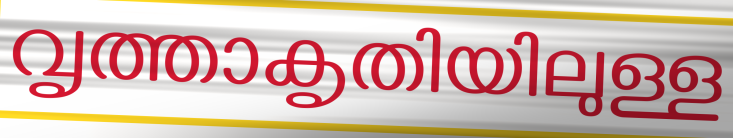
വൃത്താകൃതിയിലുള്ള